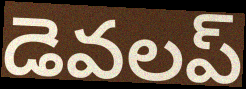
డెవలప్